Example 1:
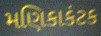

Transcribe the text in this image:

મણિકાકંટક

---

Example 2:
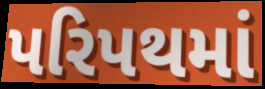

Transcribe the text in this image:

પરિપથમાં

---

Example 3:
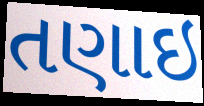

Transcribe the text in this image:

તણાઇ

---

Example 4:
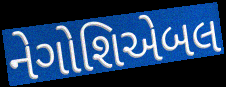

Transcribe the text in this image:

નેગોશિએબલ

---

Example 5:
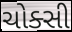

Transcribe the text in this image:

ચોક્સી